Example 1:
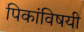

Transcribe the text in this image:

पिकांविषयी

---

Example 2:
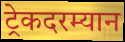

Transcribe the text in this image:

ट्रेकदरम्यान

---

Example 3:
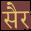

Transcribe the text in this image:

सैर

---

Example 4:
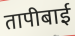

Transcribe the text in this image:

तापीबाई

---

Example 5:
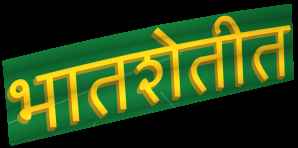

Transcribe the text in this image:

भातशेतीत